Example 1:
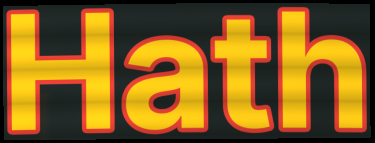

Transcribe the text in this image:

Hath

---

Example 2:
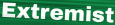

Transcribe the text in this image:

Extremist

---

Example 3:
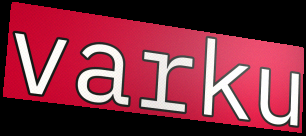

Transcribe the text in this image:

varku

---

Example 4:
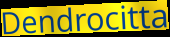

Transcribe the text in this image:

Dendrocitta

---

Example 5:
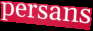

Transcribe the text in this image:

persans